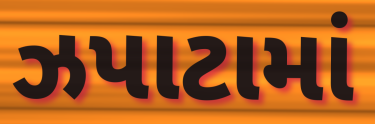
ઝપાટામાં